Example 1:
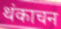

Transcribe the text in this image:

थंकाचन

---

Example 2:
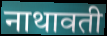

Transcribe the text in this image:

नाथावती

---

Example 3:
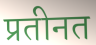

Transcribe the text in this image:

प्रतीनत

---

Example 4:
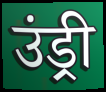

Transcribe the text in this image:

उंड्री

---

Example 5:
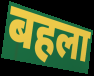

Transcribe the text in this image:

बहला